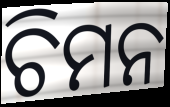
ଚିମନ